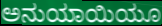
ಅನುಯಾಯಿಯೂ